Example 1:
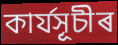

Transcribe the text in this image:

কাৰ্যসূচীৰ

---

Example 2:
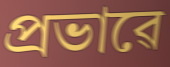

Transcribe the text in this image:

প্ৰভাৱে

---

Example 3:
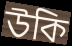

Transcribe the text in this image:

উকি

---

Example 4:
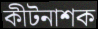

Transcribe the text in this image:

কীটনাশক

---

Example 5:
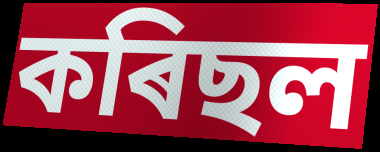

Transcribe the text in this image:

কৰিছল